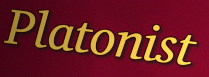
Platonist